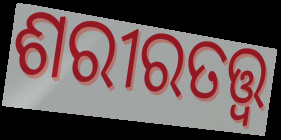
ଶରୀରତତ୍ତ୍ୱ